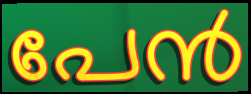
പേൻ